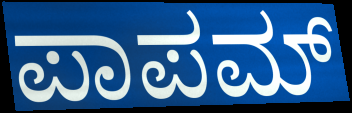
ಪಾಪಮ್